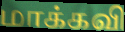
மாக்கவி